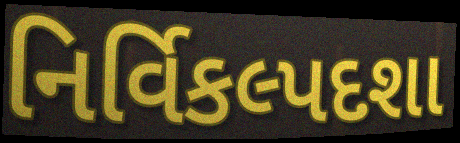
નિર્વિકલ્પદશા